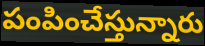
పంపించేస్తున్నారు